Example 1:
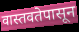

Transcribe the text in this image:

वास्तवतेपासून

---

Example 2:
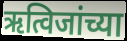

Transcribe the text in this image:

ऋत्विजांच्या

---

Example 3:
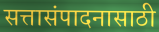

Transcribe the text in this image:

सत्तासंपादनासाठी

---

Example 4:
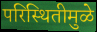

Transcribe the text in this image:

परिस्थितीमुळे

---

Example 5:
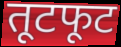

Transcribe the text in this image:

तूटफूट